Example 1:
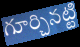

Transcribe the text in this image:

గూర్చినట్టి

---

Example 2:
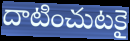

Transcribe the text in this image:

దాటించుటకై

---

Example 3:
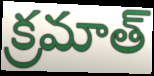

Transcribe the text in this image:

క్రమాత్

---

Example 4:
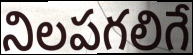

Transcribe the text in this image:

నిలపగలిగే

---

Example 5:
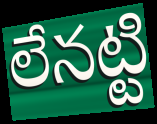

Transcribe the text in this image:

లేనట్టి